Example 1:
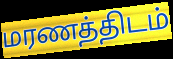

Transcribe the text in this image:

மரணத்திடம்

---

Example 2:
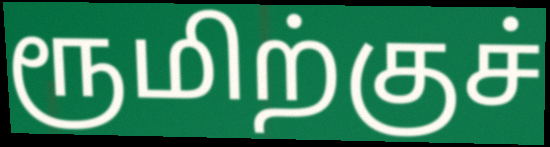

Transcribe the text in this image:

ரூமிற்குச்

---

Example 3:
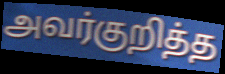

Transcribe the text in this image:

அவர்குறித்த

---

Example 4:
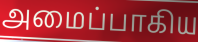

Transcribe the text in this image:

அமைப்பாகிய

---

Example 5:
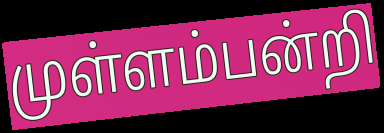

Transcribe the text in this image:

முள்ளம்பன்றி